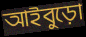
আইবুড়ো